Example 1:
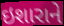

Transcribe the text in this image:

ઇશારાને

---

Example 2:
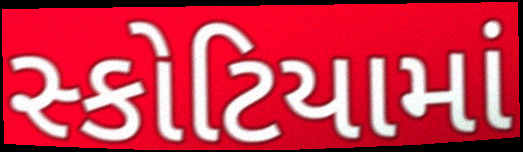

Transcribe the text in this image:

સ્કોટિયામાં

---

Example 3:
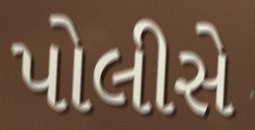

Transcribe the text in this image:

પોલીસે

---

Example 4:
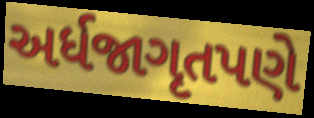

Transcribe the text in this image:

અર્ધજાગૃતપણે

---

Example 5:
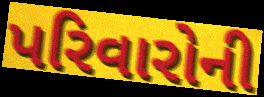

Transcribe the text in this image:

પરિવારોની